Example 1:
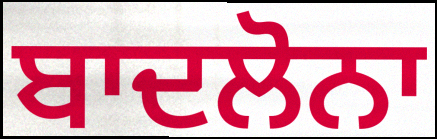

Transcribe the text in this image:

ਬਾਦਲੋਨਾ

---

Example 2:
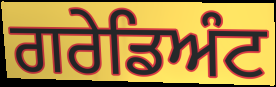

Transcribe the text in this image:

ਗਰੇਡਿਅੰਟ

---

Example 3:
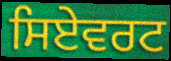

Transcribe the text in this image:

ਸਿਏਵਰਟ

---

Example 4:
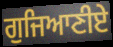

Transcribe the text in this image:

ਗੁਜਿਆਣੀਏ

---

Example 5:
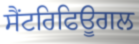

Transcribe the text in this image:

ਸੈਂਟਰਿਫਿਊਗਲ